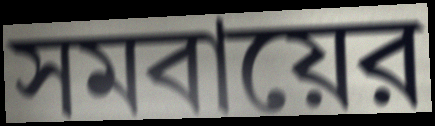
সমবায়ের